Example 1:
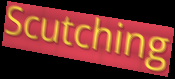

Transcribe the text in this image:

Scutching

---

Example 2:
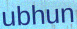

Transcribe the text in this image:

ubhun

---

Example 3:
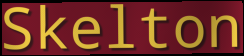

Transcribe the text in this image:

Skelton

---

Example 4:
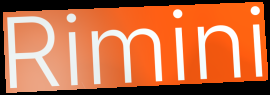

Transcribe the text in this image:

Rimini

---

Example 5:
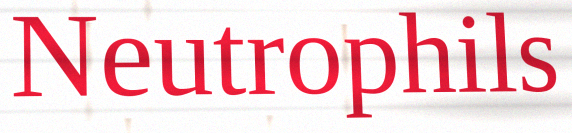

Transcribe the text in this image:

Neutrophils